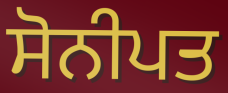
ਸੋਨੀਪਤ